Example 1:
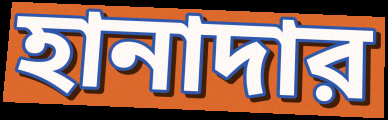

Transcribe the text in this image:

হানাদার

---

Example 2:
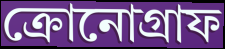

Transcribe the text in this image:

ক্রোনোগ্রাফ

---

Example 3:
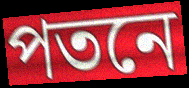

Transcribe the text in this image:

পতনে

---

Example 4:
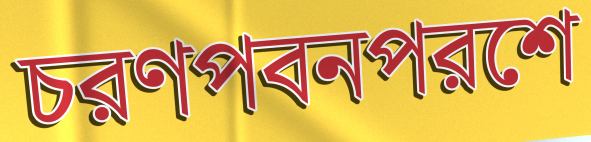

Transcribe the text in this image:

চরণপবনপরশে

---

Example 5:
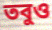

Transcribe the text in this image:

তবুও